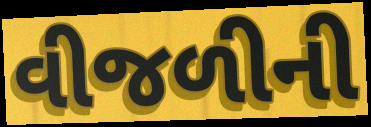
વીજળીની